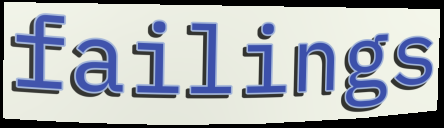
failings